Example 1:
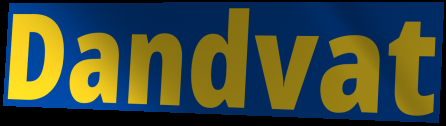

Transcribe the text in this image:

Dandvat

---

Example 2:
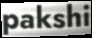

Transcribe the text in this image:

pakshi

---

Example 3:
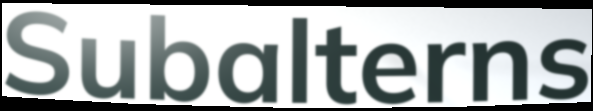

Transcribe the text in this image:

Subalterns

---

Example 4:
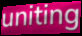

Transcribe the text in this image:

uniting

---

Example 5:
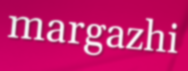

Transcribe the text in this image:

margazhi